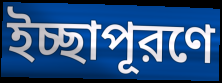
ইচ্ছাপূরণে